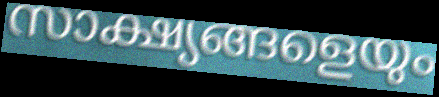
സാക്ഷ്യങ്ങളെയും